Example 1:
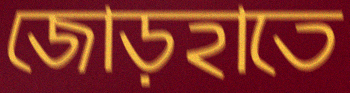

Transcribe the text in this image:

জোড়হাতে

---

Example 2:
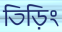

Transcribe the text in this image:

তিড়িং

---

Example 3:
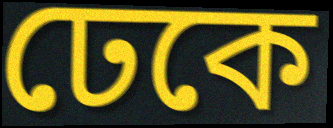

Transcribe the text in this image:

ঢেকে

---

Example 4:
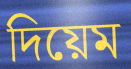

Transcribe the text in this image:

দিয়েম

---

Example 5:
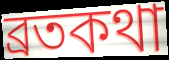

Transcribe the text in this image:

ব্রতকথা